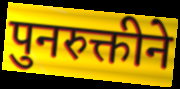
पुनरुक्तीने